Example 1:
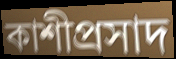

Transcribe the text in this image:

কাশীপ্রসাদ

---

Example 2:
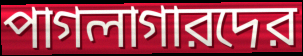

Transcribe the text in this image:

পাগলাগারদের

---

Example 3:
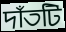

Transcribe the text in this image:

দাঁতটি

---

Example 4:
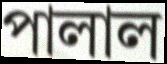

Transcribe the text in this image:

পালাল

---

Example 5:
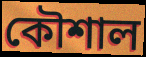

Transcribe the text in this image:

কৌশাল